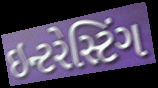
ઇન્ટરેસ્ટિંગ